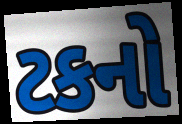
ટકનો